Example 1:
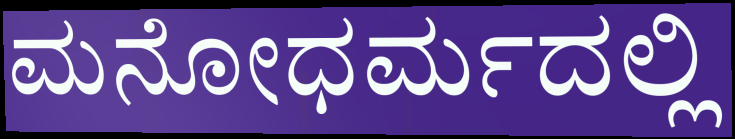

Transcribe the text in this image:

ಮನೋಧರ್ಮದಲ್ಲಿ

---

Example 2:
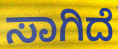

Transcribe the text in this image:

ಸಾಗಿದೆ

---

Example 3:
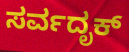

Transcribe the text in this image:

ಸರ್ವದೃಕ್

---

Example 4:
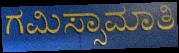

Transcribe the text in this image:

ಗಮಿಸ್ಸಾಮಾತಿ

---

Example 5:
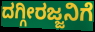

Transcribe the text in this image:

ದಗ್ಗೀರಜ್ಜನಿಗೆ